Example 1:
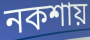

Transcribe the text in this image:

নকশায়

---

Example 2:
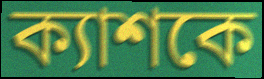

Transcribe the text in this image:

ক্যাশকে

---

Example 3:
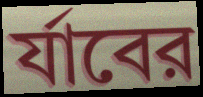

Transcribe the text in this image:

র্যাবের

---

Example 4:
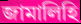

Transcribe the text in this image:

জামালিহি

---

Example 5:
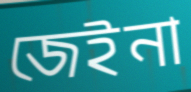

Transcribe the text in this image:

জেইনা